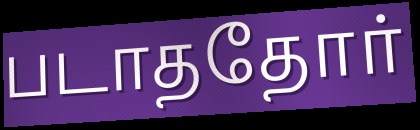
படாததோர்